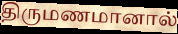
திருமணமானால்